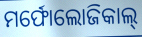
ମର୍ଫୋଲୋଜିକାଲ୍